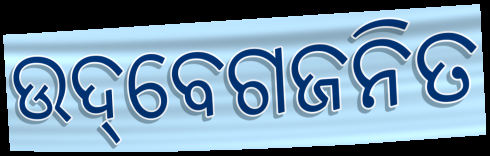
ଉଦ୍‌ବେଗଜନିତ